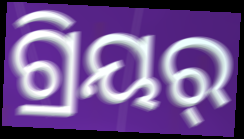
ଗ୍ରିୟର୍